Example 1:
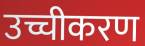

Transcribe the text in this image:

उच्चीकरण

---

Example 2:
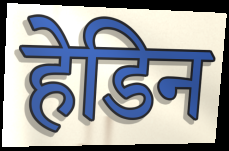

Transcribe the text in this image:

हेडिन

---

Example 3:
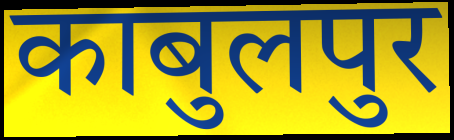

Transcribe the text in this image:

काबुलपुर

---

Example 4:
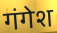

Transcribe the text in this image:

गंगेश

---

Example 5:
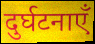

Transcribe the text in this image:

दुर्घटनाएँ